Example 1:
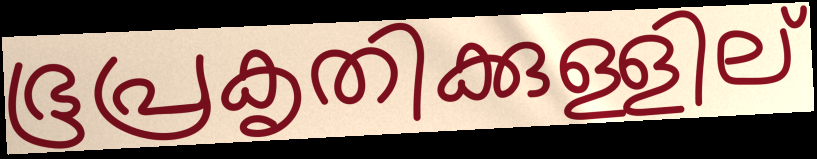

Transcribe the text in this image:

ഭൂപ്രകൃതിക്കുള്ളില്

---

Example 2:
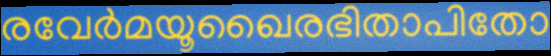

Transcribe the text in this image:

രവേർമയൂഖൈരഭിതാപിതോ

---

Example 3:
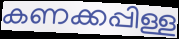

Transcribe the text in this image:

കണക്കപ്പിള്ള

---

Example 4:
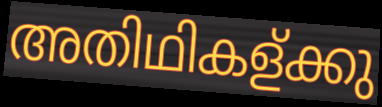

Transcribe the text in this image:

അതിഥികള്ക്കു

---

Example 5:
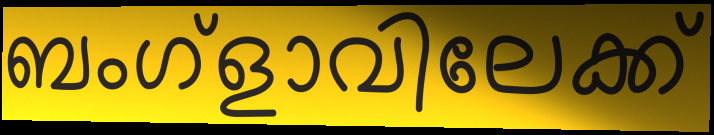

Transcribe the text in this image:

ബംഗ്ളാവിലേക്ക്